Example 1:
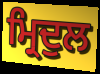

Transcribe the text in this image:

ਮ੍ਰਿਦੁਲ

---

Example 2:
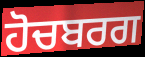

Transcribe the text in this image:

ਹੋਚਬਰਗ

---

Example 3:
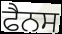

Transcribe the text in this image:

ਫੈਨਸ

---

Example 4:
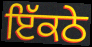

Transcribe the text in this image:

ਇੱਕਠੇ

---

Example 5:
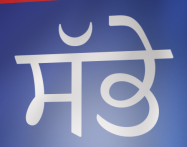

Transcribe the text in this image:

ਸੱਭੇ